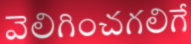
వెలిగించగలిగే